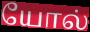
யோல்